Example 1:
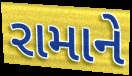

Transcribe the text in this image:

રામાને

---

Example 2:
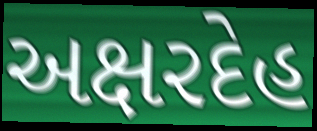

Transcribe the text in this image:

અક્ષરદેહ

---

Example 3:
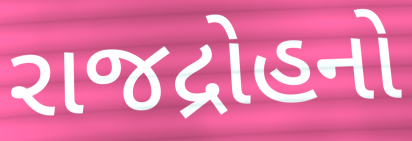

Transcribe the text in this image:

રાજદ્રોહનો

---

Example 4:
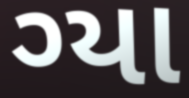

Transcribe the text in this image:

ગ્યા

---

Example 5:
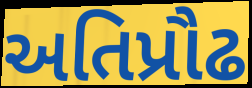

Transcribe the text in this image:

અતિપ્રૌઢ